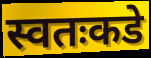
स्वतःकडे